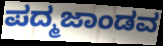
ಪದ್ಮಜಾಂಡವ